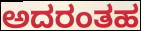
ಅದರಂತಹ